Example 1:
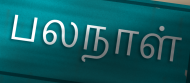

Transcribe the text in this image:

பலநாள்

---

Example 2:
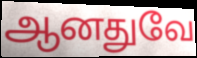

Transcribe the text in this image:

ஆனதுவே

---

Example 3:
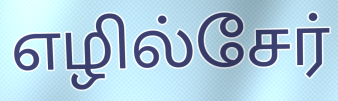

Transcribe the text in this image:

எழில்சேர்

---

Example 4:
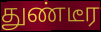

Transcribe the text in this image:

துண்டீர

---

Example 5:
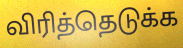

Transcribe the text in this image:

விரித்தெடுக்க